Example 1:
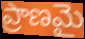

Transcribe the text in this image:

ప్రాణమై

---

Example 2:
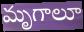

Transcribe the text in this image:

మృగాలూ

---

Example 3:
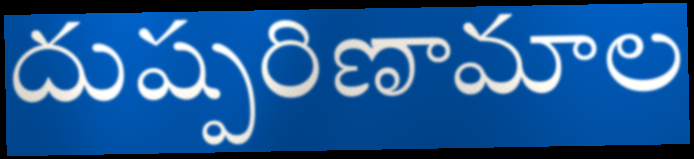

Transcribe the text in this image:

దుష్పరిణామాల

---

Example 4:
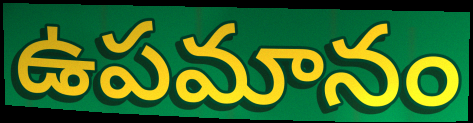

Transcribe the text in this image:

ఉపమానం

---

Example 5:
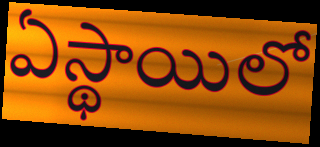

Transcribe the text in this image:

ఏస్థాయిలో